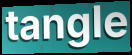
tangle